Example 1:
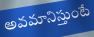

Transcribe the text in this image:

అవమానిస్తుంటే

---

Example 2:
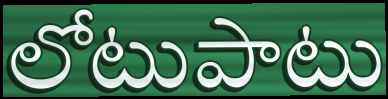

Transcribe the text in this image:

లోటుపాటు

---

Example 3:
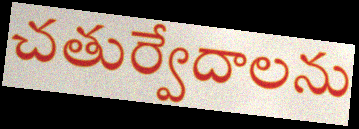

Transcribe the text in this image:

చతుర్వేదాలను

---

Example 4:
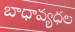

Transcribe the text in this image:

బాధావ్యధల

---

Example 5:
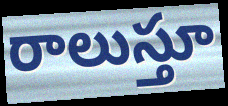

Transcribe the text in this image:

రాలుస్తూ